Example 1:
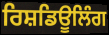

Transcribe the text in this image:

ਰਿਸ਼ਡਿਊਲਿੰਗ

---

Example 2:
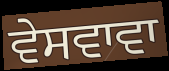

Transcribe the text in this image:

ਵੇਸਵਾਵਾ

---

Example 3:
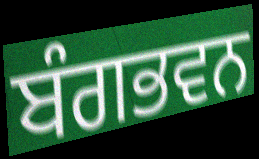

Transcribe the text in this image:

ਬੰਗਭਵਨ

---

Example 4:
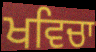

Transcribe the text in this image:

ਖਵਿਚਾ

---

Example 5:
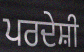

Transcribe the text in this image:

ਪਰਦੇਸ਼ੀ